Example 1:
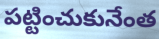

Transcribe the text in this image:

పట్టించుకునేంత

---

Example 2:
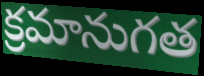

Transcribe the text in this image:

క్రమానుగత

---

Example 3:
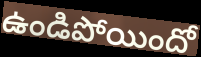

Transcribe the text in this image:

ఉండిపోయిందో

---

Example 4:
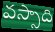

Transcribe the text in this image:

వస్సాది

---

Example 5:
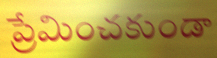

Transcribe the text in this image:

ప్రేమించకుండా